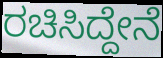
ರಚಿಸಿದ್ದೇನೆ